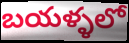
బయళ్ళలో